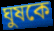
ঘুষকে